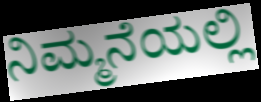
ನಿಮ್ಮನೆಯಲ್ಲಿ